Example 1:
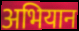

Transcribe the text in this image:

अभियान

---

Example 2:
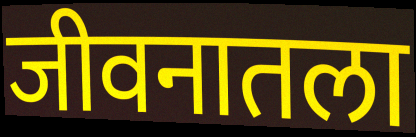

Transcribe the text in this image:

जीवनातला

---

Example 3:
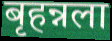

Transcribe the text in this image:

बृहन्नला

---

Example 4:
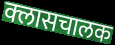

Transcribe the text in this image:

क्‍लासचालक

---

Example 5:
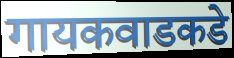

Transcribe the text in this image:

गायकवाडकडे